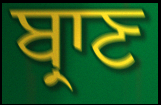
ਬ੍ਰਾਣ